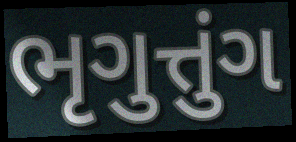
ભૃગુત્તુંગ